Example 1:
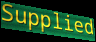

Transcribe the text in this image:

Supplied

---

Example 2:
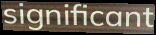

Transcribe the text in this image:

significant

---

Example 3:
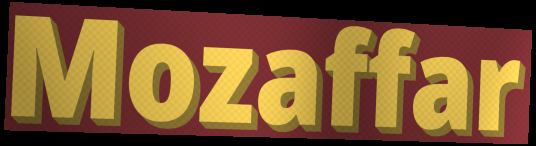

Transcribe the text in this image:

Mozaffar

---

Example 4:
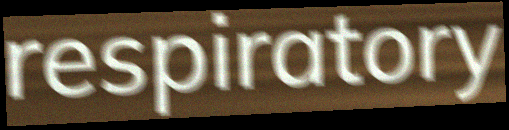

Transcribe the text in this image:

respiratory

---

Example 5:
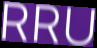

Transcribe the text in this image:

RRU